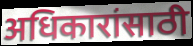
अधिकारांसाठी